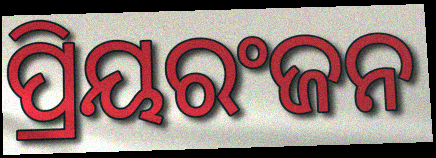
ପ୍ରିୟରଂଜନ